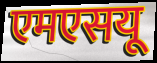
एमएसयू